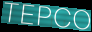
TEPCO